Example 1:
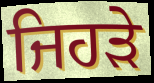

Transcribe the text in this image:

ਜਿਹਡ਼ੇ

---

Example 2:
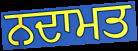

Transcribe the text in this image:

ਨਦਾਮਤ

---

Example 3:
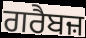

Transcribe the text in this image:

ਗਰੈਬਜ਼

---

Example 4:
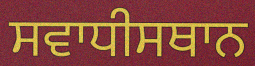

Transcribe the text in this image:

ਸਵਾਧੀਸਥਾਨ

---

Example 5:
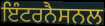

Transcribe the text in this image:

ਇੰਟਰਨੈਸਨਲ